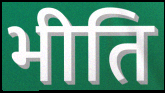
भीति